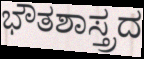
ಭೌತಶಾಸ್ತ್ರದ